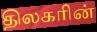
திலகரின்